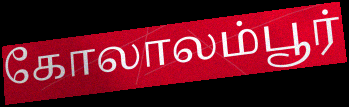
கோலாலம்பூர்